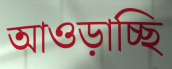
আওড়াচ্ছি